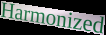
Harmonized